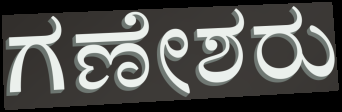
ಗಣೇಶರು